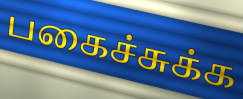
பகைச்சுக்க